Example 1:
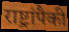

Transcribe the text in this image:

राष्ट्रांपैकी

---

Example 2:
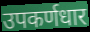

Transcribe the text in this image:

उपकर्णधार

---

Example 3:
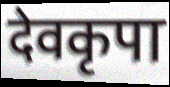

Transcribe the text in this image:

देवकृपा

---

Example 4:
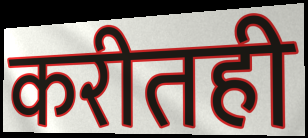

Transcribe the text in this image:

करीतही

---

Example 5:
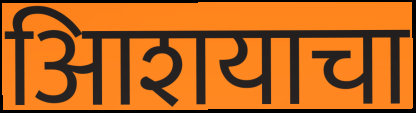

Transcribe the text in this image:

आिशयाचा